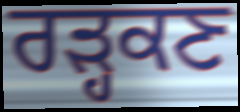
ਰੜ੍ਹਕਣ